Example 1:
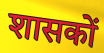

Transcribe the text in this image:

शासकों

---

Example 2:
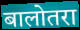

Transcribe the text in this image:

बालोतरा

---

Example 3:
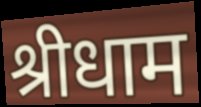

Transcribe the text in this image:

श्रीधाम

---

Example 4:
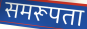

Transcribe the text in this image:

समरूपता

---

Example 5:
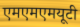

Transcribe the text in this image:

एमएमएमयूटी